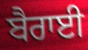
ਬੈਰਾਈ